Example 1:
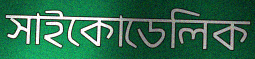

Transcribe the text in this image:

সাইকোডেলিক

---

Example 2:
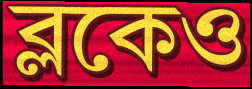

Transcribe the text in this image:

ব্লকেও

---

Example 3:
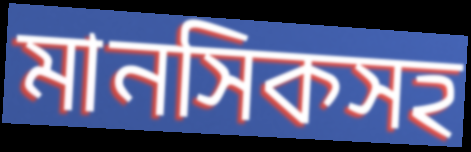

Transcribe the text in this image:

মানসিকসহ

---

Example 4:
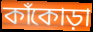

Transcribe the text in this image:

কাঁকোড়া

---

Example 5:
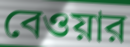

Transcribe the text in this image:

বেওয়ার